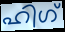
ഹിഗ്